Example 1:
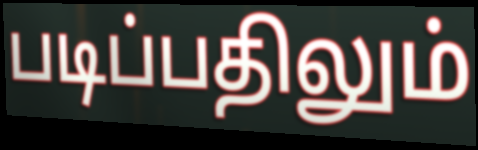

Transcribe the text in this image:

படிப்பதிலும்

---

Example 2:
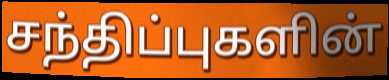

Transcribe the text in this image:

சந்திப்புகளின்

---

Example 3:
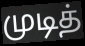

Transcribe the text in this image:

முடித்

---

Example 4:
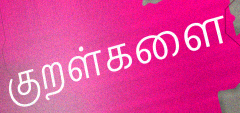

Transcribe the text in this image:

குறள்களை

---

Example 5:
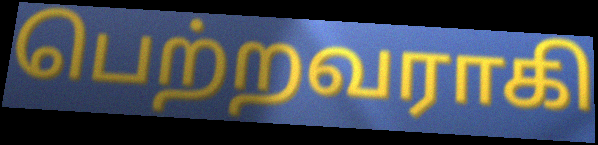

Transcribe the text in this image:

பெற்றவராகி